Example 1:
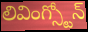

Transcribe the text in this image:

లివింగ్స్టోన్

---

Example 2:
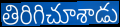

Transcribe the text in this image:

తిరిగిచూశాడు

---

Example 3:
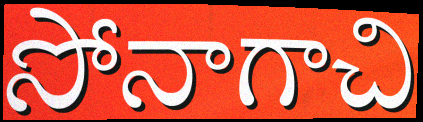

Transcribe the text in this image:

సోనాగాచి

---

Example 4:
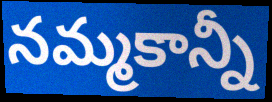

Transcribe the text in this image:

నమ్మకాన్నీ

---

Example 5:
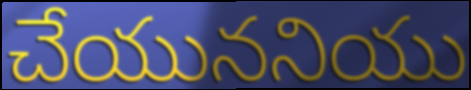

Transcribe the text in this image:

చేయుననియు